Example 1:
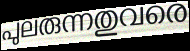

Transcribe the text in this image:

പുലരുന്നതുവരെ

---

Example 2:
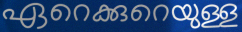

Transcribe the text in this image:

ഏറെക്കുറെയുള്ള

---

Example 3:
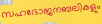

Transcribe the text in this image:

സഹഭോജനബലികളും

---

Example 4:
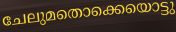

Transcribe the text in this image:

ചേലുമതൊക്കെയൊട്ടു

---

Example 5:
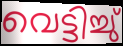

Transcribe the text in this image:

വെട്ടിച്ചു്